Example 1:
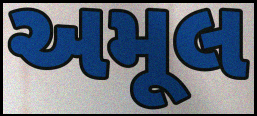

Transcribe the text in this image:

અમૂલ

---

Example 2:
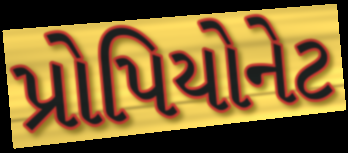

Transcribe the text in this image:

પ્રોપિયોનેટ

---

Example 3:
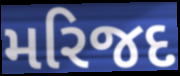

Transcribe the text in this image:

મરિજદ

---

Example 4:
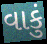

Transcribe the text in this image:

વાકું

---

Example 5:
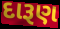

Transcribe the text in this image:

દારૂણ